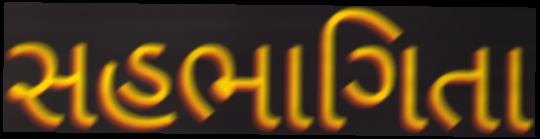
સહભાગિતા